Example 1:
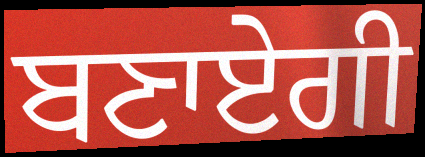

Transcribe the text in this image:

ਬਣਾਏਗੀ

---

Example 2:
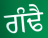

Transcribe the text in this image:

ਗੰਢੈ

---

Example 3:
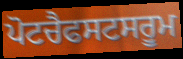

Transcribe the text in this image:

ਪੋਟਚੈਫਸਟਸਰੂਮ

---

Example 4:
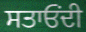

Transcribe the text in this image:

ਸਤਾਓਂਦੀ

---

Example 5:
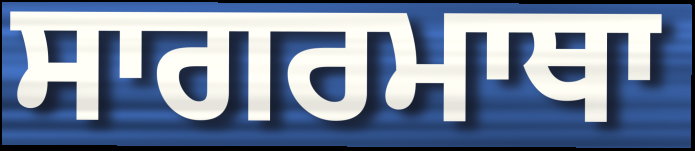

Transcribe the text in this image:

ਸਾਗਰਮਾਥਾ